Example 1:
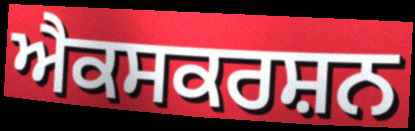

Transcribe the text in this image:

ਐਕਸਕਰਸ਼ਨ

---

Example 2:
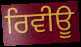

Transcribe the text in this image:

ਰਿਵੀਊ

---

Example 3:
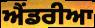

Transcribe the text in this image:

ਐਂਡਰੀਆ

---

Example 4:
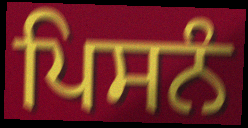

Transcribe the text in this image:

ਪਿਸਨੰ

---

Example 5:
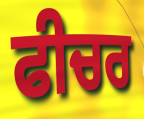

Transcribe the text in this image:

ਫੀਚਰ